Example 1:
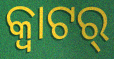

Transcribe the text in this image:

କ୍ୱାଟର୍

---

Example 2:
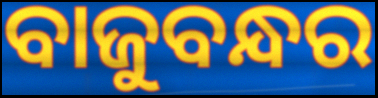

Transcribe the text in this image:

ବାଜୁବନ୍ଧର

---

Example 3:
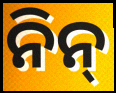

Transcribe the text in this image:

ନିନ୍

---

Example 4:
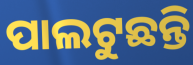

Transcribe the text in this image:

ପାଲଟୁଛନ୍ତି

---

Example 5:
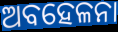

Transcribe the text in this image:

ଅବହେଳନା